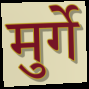
मुर्गे